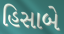
હિસાબે